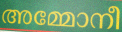
അമ്മോനീ